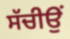
ਸੱਚੀਉਂ